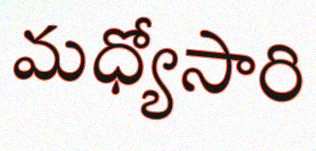
మధ్యోసారి